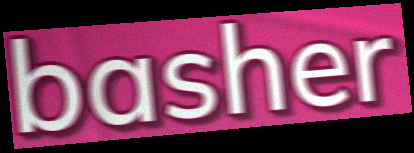
basher